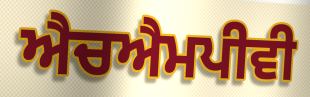
ਐਚਐਮਪੀਵੀ